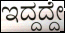
ಇದ್ದದ್ದೇ